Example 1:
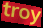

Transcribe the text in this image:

troy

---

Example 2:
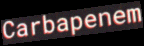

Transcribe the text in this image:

Carbapenem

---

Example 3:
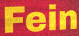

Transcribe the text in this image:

Fein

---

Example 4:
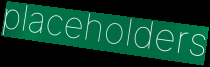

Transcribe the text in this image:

placeholders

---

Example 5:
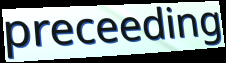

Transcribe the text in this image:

preceeding